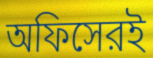
অফিসেরই